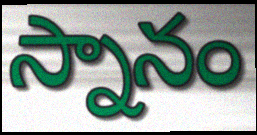
స్నానం